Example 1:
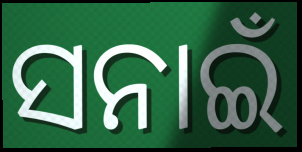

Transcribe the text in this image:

ସନାଇଁ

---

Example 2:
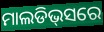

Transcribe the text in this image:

ମାଲଡିଭ୍‌ସରେ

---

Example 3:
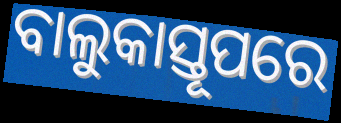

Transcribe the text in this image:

ବାଲୁକାସ୍ତୂପରେ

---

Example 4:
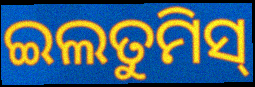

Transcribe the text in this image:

ଇଲତୁମିସ୍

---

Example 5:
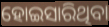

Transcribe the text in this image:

ହୋଇସାରିଥିବା